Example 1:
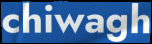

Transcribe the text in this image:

chiwagh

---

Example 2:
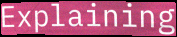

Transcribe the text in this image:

Explaining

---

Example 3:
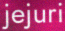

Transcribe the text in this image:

jejuri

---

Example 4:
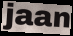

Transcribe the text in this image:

jaan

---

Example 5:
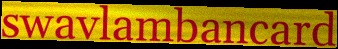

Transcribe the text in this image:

swavlambancard